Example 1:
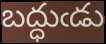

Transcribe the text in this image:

బద్ధుఁడు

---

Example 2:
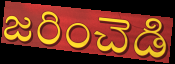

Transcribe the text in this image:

జరించెడి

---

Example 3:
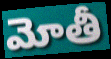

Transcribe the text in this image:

మోతీ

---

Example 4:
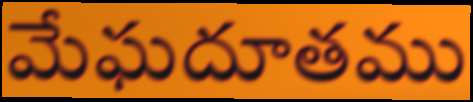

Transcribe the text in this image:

మేఘదూతము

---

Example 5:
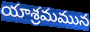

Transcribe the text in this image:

యాశ్రమమున